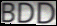
BDD